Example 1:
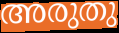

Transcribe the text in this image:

അരുതു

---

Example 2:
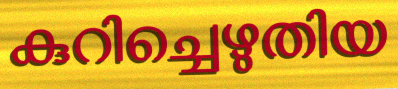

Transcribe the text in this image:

കുറിച്ചെഴുതിയ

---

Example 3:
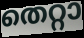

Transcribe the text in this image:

തെറ്റാ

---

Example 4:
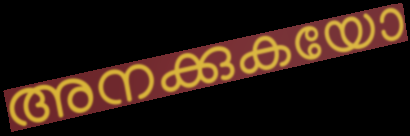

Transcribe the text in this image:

അനക്കുകയോ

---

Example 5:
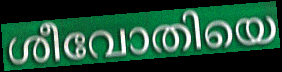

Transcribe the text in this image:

ശീവോതിയെ